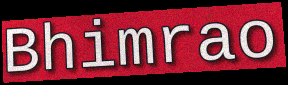
Bhimrao